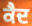
ਕੈਦ